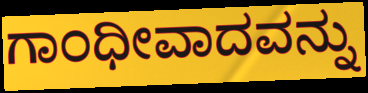
ಗಾಂಧೀವಾದವನ್ನು